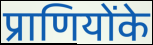
प्राणियोंके